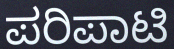
ಪರಿಪಾಟಿ